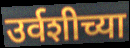
उर्वशीच्या